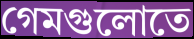
গেমগুলোতে